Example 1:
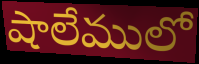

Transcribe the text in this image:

షాలేములో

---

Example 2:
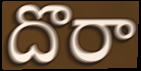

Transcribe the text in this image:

దొరా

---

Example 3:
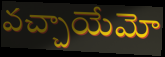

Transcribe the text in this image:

వచ్చాయేమో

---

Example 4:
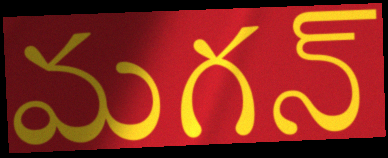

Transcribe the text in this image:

మగన్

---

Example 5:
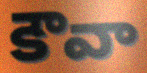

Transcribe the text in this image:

కౌవా